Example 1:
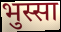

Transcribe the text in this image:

भुस्सा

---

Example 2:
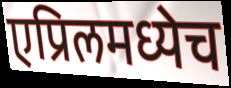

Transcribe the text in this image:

एप्रिलमध्येच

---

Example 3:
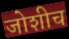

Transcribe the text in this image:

जोशीच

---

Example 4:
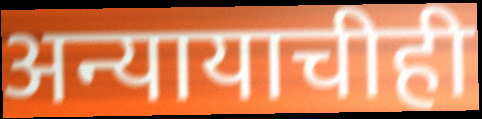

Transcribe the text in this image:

अन्यायाचीही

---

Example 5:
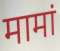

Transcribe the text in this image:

मामां